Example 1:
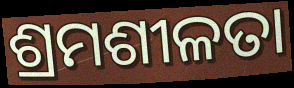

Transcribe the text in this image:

ଶ୍ରମଶୀଳତା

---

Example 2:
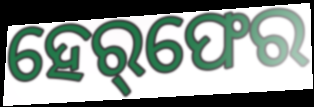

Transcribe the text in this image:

ହେର୍‌ଫେର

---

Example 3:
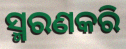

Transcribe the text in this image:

ସ୍ମରଣକରି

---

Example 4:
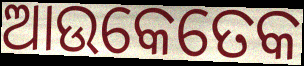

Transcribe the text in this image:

ଆଉକେତେକ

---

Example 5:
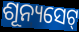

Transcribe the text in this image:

ଶୂନ୍ୟସେଟ୍